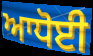
ਆਧੋਈ